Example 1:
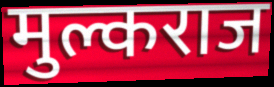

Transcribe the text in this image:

मुल्कराज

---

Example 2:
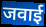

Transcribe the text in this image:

जवाई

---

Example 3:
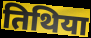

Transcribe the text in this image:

तिथिया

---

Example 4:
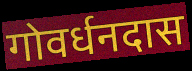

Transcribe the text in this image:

गोवर्धनदास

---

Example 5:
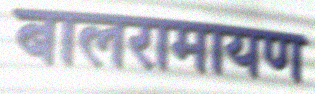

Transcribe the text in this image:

बालरामायण